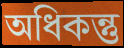
অধিকন্তু